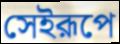
সেইরূপে